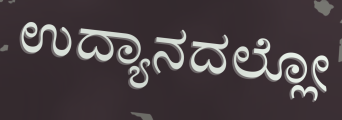
ಉದ್ಯಾನದಲ್ಲೋ